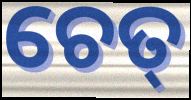
ଚେତ୍